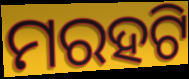
ମରହଟି